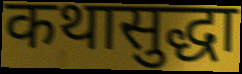
कथासुद्धा